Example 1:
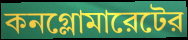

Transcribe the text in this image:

কনগ্লোমারেটের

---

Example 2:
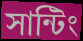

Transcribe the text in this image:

সান্টিং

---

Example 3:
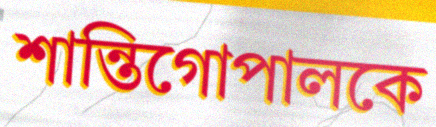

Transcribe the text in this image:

শান্তিগোপালকে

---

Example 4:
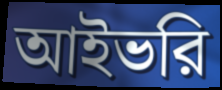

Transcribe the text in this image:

আইভরি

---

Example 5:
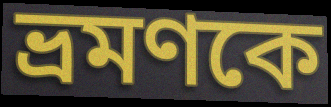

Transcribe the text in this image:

ভ্রমণকে